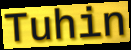
Tuhin